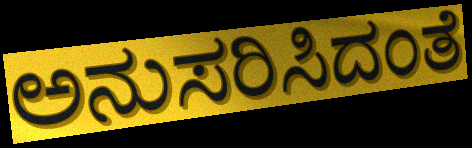
ಅನುಸರಿಸಿದಂತೆ